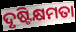
ଦୃଷ୍ଟିକ୍ଷମତା